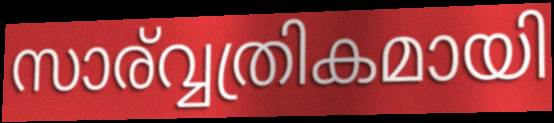
സാര്വ്വത്രികമായി